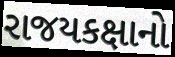
રાજયકક્ષાનો